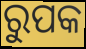
ରୁପକ